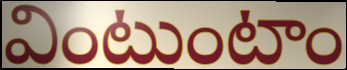
వింటుంటాం